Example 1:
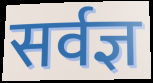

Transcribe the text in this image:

सर्वज्ञ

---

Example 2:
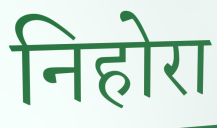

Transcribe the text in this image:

निहोरा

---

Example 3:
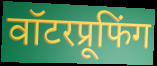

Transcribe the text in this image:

वॉटरप्रूफिंग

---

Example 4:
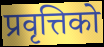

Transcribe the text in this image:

प्रवृत्तिको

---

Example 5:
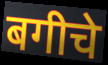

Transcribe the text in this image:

बगीचे